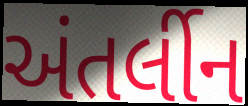
અંતર્લીન